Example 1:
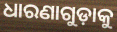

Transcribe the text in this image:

ଧାରଣାଗୁଡ଼ାକୁ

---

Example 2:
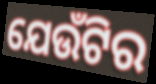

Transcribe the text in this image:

ଯେଉଁଟିର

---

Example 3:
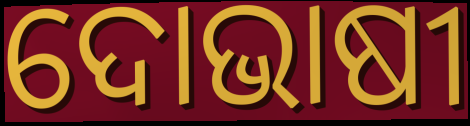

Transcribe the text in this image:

ଦୋଭାଷୀ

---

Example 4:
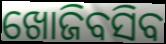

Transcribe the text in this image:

ଖୋଜିବସିବ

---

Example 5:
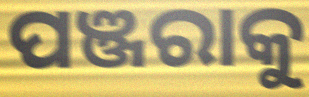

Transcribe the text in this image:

ପଞ୍ଜରାକୁ